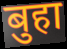
बुहा